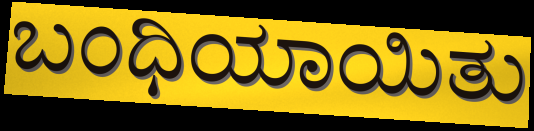
ಬಂಧಿಯಾಯಿತು